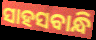
ସାହସବାନ୍ଧି